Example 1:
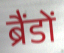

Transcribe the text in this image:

ब्रैंडों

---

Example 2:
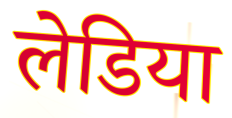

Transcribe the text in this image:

लेडिया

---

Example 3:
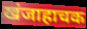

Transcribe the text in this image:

खंजाहाचक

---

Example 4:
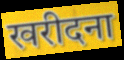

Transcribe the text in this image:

खरीदना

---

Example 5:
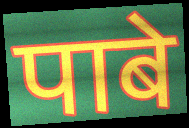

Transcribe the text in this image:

पाबे